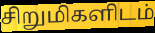
சிறுமிகளிடம்